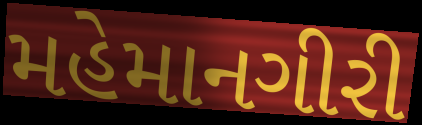
મહેમાનગીરી